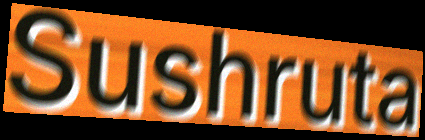
Sushruta